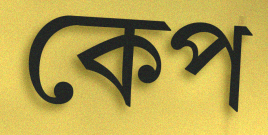
কেপ